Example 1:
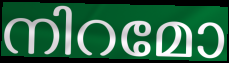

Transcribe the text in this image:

നിറമോ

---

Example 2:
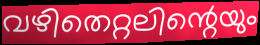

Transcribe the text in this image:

വഴിതെറ്റലിന്റെയും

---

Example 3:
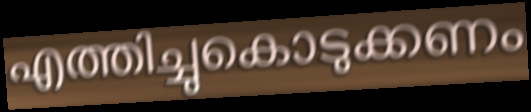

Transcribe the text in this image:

എത്തിച്ചുകൊടുക്കണം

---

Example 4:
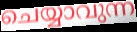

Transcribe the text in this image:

ചെയ്യാവുന്ന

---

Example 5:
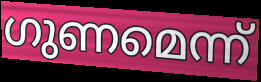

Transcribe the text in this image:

ഗുണമെന്ന്